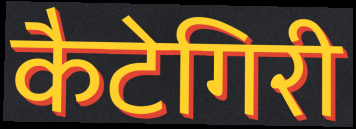
कैटेगिरी